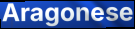
Aragonese